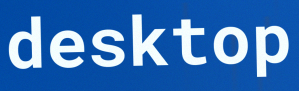
desktop